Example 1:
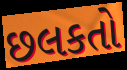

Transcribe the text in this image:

છલકતો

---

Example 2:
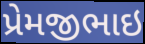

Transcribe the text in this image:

પ્રેમજીભાઇ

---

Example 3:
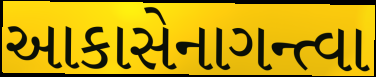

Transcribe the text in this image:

આકાસેનાગન્ત્વા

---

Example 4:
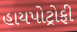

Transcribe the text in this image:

હાયપોટ્રોફી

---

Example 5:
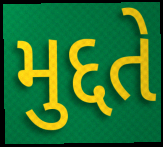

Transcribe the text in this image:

મુદ્દતે